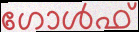
ഗോൾഫ്